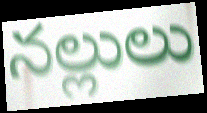
నల్లులు